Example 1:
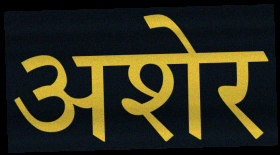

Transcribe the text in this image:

अशेर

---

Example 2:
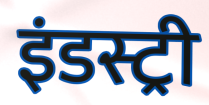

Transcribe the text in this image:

इंडस्ट्री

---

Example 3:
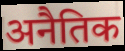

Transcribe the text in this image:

अनैतिक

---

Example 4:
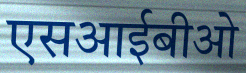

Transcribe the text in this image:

एसआईबीओ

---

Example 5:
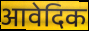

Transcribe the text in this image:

आवेदिक